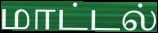
மாட்டல்